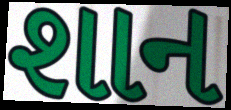
શાન